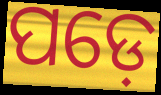
ପଡ଼େ